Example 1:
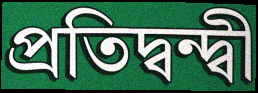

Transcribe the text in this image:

প্ৰতিদ্বন্দ্বী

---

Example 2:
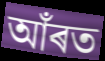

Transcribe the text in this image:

আঁৰত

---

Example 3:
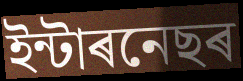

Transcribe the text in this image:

ইন্টাৰনেছৰ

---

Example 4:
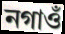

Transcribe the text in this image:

নগাওঁ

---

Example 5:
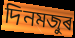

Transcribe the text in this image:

দিনমজুৰ